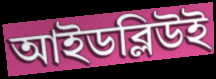
আইডব্লিউই